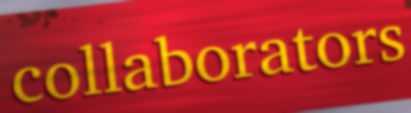
collaborators